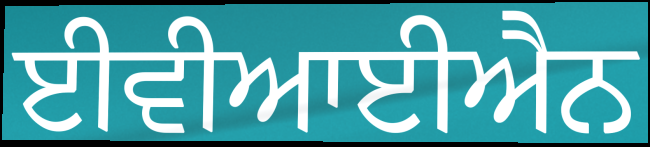
ਈਵੀਆਈਐਨ